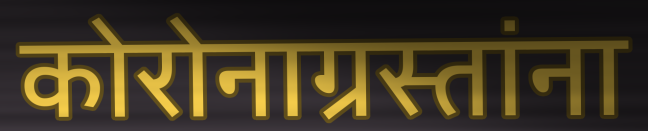
कोरोनाग्रस्तांना